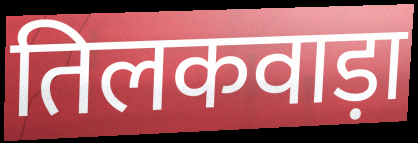
तिलकवाड़ा